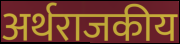
अर्थराजकीय